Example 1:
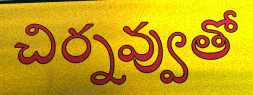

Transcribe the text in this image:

చిర్నవ్వుతో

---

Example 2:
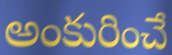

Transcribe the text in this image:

అంకురించే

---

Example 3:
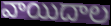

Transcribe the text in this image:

వాయిదాల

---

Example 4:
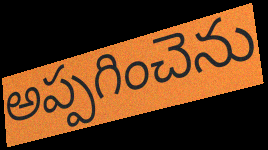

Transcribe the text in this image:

అప్పగించెను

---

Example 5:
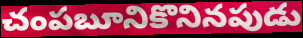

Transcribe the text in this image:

చంపబూనికొనినపుడు